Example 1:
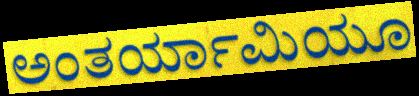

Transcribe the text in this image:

ಅಂತರ್ಯಾಮಿಯೂ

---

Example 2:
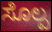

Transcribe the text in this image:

ಸೊಲ್ಪ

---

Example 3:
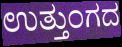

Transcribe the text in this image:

ಉತ್ತುಂಗದ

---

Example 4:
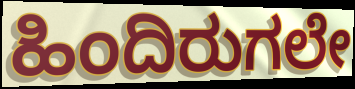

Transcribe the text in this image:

ಹಿಂದಿರುಗಲೇ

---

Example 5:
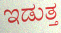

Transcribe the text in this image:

ಇಡುತ್ತ